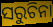
ସରୁଚିନା